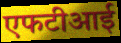
एफटीआई